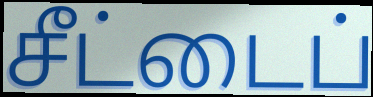
சீட்டைப்